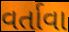
વર્તાવા